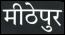
मीठेपुर